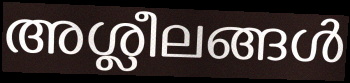
അശ്ലീലങ്ങൾ